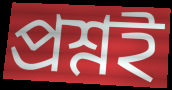
প্রশ্নই